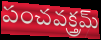
పంచవక్త్రమ్